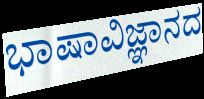
ಭಾಷಾವಿಜ್ಞಾನದ